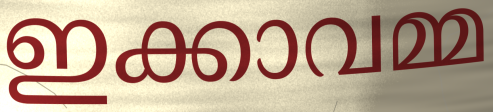
ഇക്കാവമ്മ